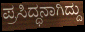
ಪ್ರಸಿದ್ಧನಾಗಿದ್ದು